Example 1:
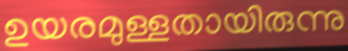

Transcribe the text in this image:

ഉയരമുള്ളതായിരുന്നു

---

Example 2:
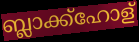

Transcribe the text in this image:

ബ്ലാക്ക്ഹോള്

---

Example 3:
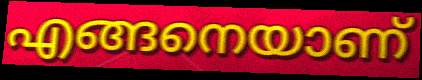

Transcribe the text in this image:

എങ്ങനെയാണ്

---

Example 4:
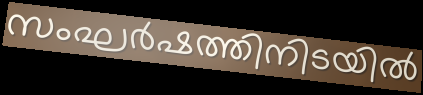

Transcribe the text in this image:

സംഘർഷത്തിനിടയിൽ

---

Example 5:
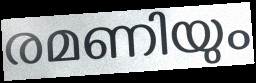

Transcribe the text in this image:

രമണിയും